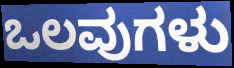
ಒಲವುಗಳು